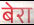
बेरा